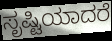
ಸೃಷ್ಟಿಯಾದರೆ